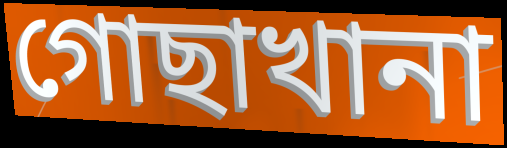
গোছাখানা